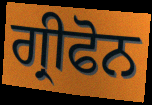
ਗ੍ਰੀਫੋਨ